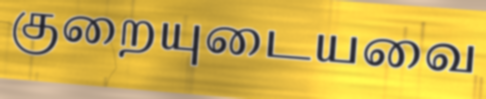
குறையுடையவை